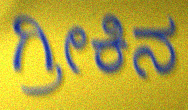
ಗ್ರೀಕಿನ